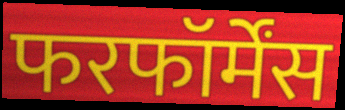
फरफॉर्मेंस